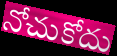
నోచుకోదు